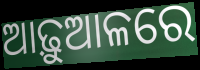
ଆଢ଼ୁଆଳରେ